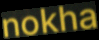
nokha